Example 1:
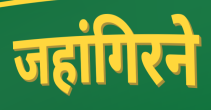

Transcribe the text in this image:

जहांगिरने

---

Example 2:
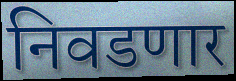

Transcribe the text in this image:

निवडणार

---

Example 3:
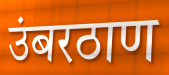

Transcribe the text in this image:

उंबरठाण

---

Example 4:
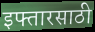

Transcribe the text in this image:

इफ्तारसाठी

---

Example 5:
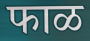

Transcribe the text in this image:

फाळ